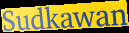
Sudkawan